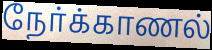
நேர்க்காணல்